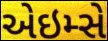
એઇમ્સે